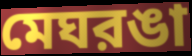
মেঘরঙা